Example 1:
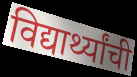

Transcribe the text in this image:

विद्यार्थ्यांची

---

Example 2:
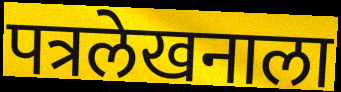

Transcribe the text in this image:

पत्रलेखनाला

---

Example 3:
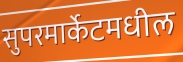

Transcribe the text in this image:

सुपरमार्केटमधील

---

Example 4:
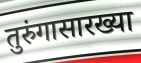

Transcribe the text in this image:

तुरुंगासारख्या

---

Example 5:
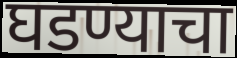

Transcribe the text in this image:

घडण्याचा